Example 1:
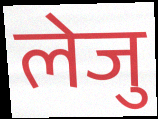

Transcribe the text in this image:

लेजु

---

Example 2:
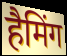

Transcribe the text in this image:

हैमिंग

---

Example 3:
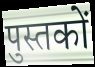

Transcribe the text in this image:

पुस्तकों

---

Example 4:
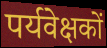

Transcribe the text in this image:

पर्यवेक्षकों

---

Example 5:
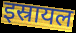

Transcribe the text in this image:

इस्रायल